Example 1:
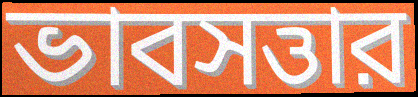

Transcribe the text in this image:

ভাবসত্তার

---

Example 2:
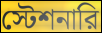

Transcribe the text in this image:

স্টেশনারি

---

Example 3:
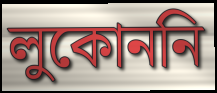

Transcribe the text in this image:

লুকোননি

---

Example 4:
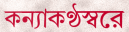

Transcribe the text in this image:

কন্যাকণ্ঠস্বরে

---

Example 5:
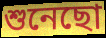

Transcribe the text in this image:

শুনেছো